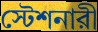
স্টেশনারী